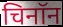
चिनॉन